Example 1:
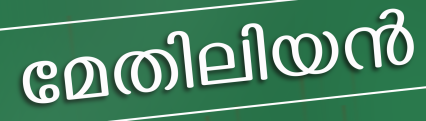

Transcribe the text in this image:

മേതിലിയൻ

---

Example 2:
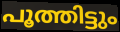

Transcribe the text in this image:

പൂത്തിട്ടും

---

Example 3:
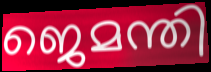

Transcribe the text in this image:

ജെമന്തി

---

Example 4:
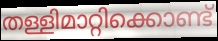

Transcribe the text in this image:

തള്ളിമാറ്റിക്കൊണ്ട്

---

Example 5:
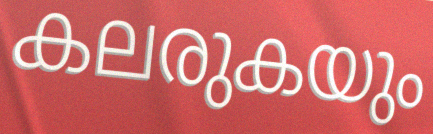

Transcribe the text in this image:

കലരുകയും